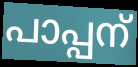
പാപ്പന്